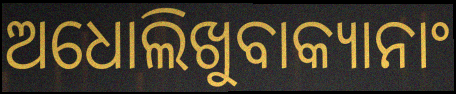
ଅଧୋଲିଖୁବାକ୍ୟାନାଂ